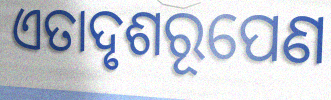
ଏତାଦୃଶରୂପେଣ